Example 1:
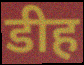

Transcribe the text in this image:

डीह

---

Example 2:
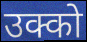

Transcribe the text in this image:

उक्को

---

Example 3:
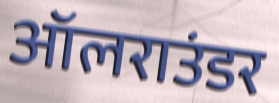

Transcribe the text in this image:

ऑलराउंडर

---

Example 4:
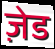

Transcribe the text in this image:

ज़ेड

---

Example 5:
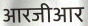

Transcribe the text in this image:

आरजीआर